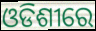
ଓଡିଶୀରେ